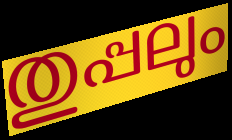
തുപ്പലും